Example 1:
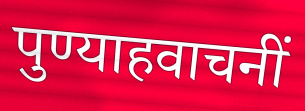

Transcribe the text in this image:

पुण्याहवाचनीं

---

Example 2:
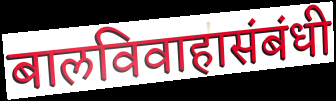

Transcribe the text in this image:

बालविवाहासंबंधी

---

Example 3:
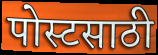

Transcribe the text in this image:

पोस्टसाठी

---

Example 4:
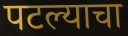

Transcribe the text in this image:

पटल्याचा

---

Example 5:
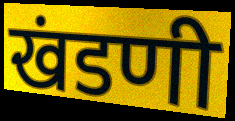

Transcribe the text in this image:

खंडणी